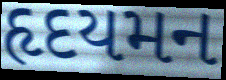
હૃદયમન